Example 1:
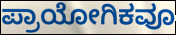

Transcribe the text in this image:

ಪ್ರಾಯೋಗಿಕವೂ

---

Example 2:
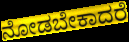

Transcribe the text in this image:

ನೋಡಬೇಕಾದರೆ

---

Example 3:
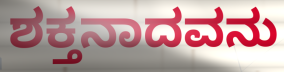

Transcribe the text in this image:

ಶಕ್ತನಾದವನು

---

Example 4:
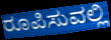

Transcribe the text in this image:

ರೂಪಿಸುವಲ್ಲಿ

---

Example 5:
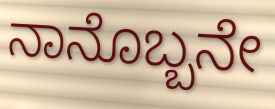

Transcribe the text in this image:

ನಾನೊಬ್ಬನೇ